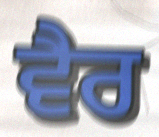
ਵੈਰ